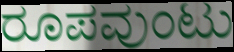
ರೂಪವುಂಟು